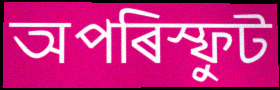
অপৰিস্ফুট